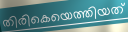
തിരികെയെത്തിയത്